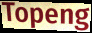
Topeng